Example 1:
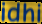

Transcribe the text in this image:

idhi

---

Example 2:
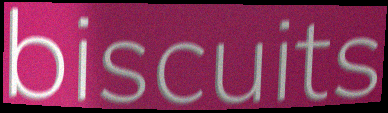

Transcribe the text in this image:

biscuits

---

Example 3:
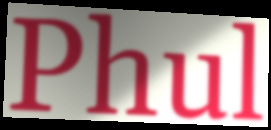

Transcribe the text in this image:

Phul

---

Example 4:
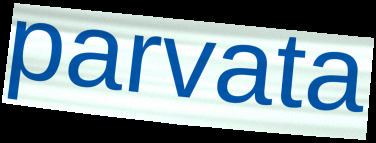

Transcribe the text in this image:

parvata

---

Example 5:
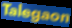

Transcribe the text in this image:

Talegaon